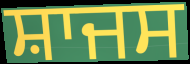
ਸ਼ਾਜਸ